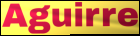
Aguirre